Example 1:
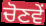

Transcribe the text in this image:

ਚੋਣਵੇਂ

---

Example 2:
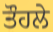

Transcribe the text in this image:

ਤੌਹਲੇ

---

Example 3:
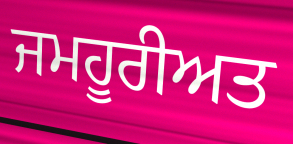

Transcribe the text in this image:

ਜਮਹੂਰੀਅਤ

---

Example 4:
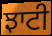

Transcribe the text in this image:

ਝਾਟੀ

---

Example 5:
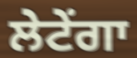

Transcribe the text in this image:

ਲੇਟੇਂਗਾ